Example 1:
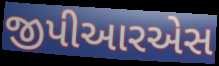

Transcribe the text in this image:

જીપીઆરએસ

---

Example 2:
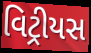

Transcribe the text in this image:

વિટ્રીયસ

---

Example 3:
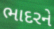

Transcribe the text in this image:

ભાદરને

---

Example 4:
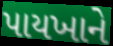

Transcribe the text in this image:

પાયખાને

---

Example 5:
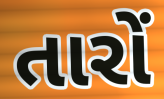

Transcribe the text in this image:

તારોં